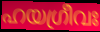
ഹയഗ്രീവഃ